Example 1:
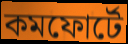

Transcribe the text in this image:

কমফোর্টে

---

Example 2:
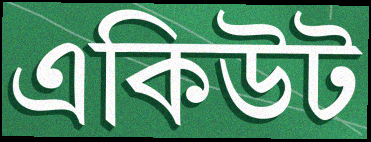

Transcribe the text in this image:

একিউট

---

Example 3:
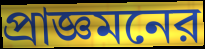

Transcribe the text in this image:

প্রাজ্ঞমনের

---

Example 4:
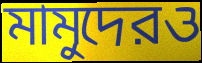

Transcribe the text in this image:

মামুদেরও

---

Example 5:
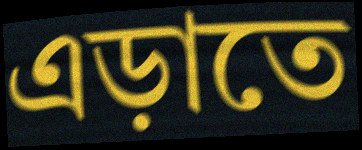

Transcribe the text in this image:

এড়াতে